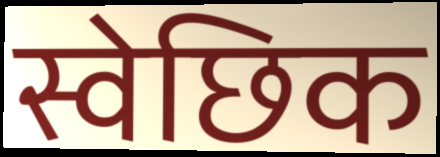
स्वेछिक